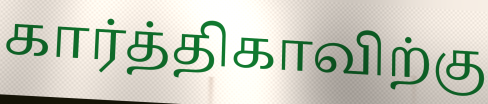
கார்த்திகாவிற்கு